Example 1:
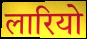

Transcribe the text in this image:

लारियो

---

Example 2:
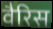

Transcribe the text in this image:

वैरिस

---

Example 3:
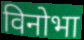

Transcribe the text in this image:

विनोभा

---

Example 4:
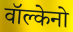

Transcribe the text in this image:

वॉल्केनो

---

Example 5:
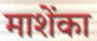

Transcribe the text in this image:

माशेंका